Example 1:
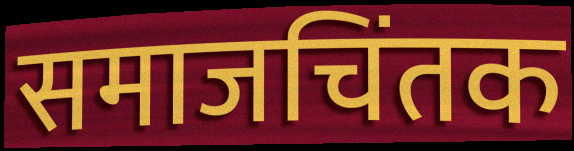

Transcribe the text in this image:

समाजचिंतक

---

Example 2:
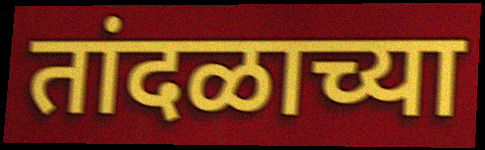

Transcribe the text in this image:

तांदळाच्या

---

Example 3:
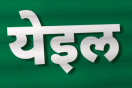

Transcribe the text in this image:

येइल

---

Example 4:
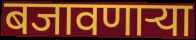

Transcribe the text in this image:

बजावणाऱ्या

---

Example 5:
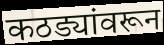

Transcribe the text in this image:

कठड्यांवरून